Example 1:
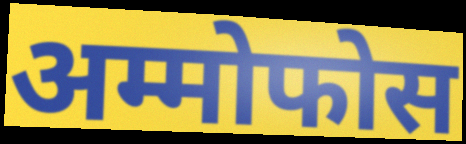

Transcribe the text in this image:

अम्मोफोस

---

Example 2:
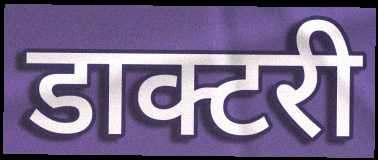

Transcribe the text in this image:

डाक्टरी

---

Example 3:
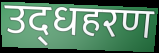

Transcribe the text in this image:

उद्धहरण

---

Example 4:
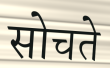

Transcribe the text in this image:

सोचते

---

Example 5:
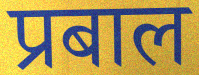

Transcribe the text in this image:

प्रबाल